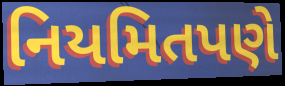
નિયમિતપણે